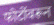
फोटोंवरून